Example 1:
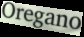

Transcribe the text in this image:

Oregano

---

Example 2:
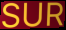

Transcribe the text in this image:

SUR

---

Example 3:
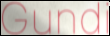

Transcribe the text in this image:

Gundi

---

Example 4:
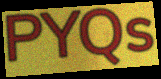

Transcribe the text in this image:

PYQs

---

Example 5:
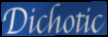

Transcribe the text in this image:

Dichotic